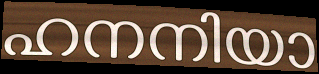
ഹനനിയാ